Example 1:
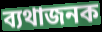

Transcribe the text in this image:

ব্যথাজনক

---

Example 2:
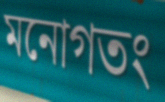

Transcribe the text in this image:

মনোগতং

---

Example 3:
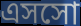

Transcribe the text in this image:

এসসো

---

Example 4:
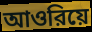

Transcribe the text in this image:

আওরিয়ে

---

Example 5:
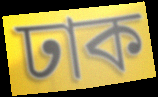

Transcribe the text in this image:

ঢাক